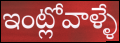
ఇంట్లోవాళ్ళే